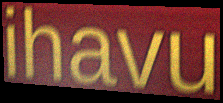
ihavu